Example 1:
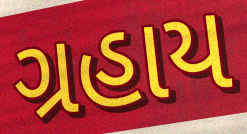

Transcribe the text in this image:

ગ્રહાય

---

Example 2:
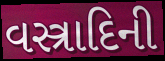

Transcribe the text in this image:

વસ્ત્રાદિની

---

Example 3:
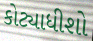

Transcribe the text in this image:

કોટ્યાધીશો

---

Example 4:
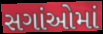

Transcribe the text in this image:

સગાંઓમાં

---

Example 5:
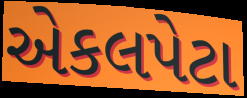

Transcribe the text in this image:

એકલપેટા